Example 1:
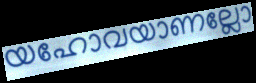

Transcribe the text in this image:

യഹോവയാണല്ലോ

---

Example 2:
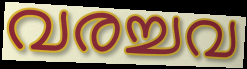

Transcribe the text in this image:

വരച്ചവ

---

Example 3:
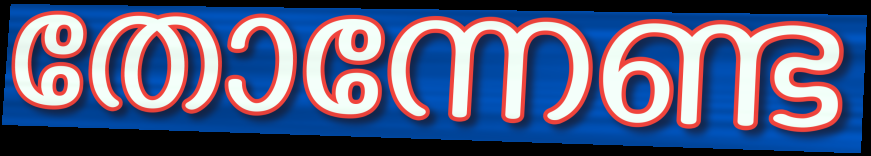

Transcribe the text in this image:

തോന്നേണ്ട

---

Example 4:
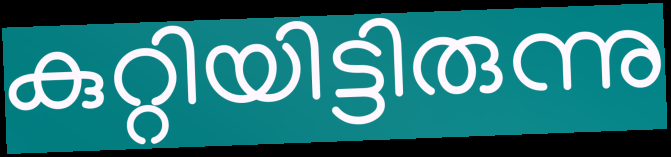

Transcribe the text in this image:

കുറ്റിയിട്ടിരുന്നു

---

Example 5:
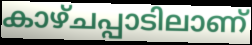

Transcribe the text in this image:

കാഴ്ചപ്പാടിലാണ്